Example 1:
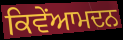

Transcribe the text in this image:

ਕਿਵੇਂਆਮਦਨ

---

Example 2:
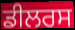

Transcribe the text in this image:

ਡੀਲਰਸ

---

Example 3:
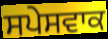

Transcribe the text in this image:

ਸਪੇਸਵਾਕ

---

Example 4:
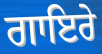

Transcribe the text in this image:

ਗਾਇਰੇ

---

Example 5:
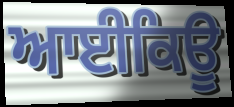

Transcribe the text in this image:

ਆਈਕਿਊ